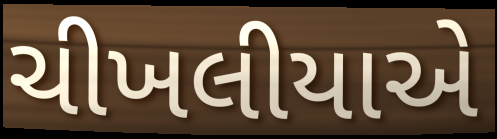
ચીખલીયાએ